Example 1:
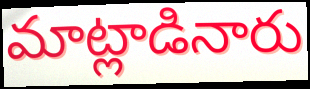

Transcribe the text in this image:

మాట్లాడినారు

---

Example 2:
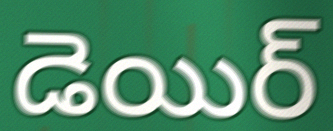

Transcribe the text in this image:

డెయిర్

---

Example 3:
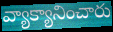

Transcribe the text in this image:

వ్యాక్యానించారు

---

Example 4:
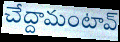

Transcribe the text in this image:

చేద్దామంటావ్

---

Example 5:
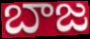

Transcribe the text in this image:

బాజ